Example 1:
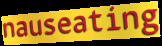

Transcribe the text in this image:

nauseating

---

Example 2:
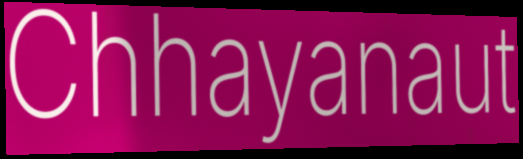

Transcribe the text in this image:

Chhayanaut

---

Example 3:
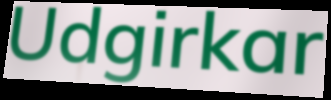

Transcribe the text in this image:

Udgirkar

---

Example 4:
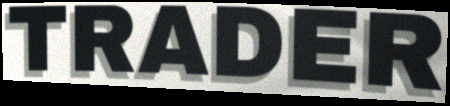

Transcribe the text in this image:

TRADER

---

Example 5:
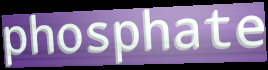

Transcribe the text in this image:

phosphate